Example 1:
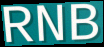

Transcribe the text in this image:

RNB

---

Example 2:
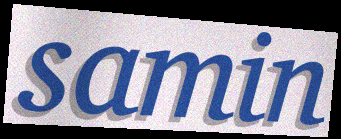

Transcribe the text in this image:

samin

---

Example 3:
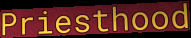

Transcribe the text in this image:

Priesthood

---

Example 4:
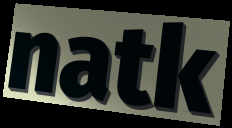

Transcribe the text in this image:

natk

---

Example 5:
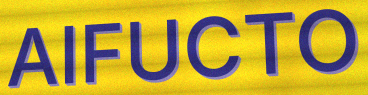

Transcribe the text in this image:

AIFUCTO